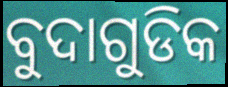
ବୁଦାଗୁଡିକ